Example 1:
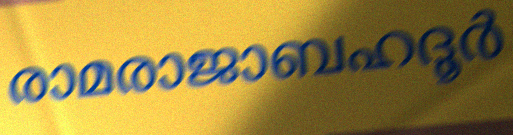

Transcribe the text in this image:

രാമരാജാബഹദൂർ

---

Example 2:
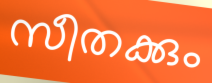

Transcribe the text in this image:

സീതക്കും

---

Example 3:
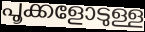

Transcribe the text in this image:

പൂക്കളോടുള്ള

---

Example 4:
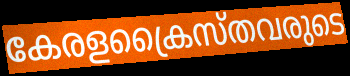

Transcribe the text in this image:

കേരളക്രൈസ്തവരുടെ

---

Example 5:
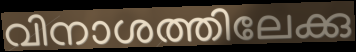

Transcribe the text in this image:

വിനാശത്തിലേക്കു